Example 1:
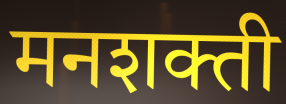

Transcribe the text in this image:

मनशक्ती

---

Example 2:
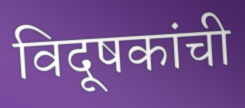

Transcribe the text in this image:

विदूषकांची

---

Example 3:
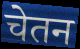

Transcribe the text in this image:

चेतन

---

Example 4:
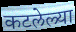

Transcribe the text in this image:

कटलेल्या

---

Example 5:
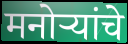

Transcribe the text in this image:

मनोऱ्यांचे